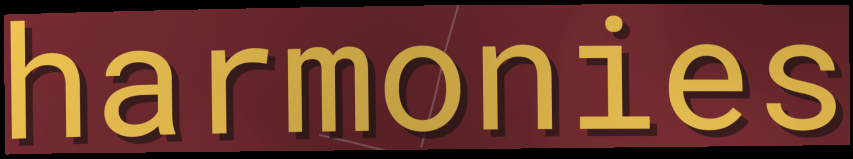
harmonies